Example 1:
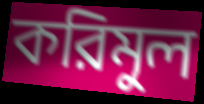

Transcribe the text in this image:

করিমুল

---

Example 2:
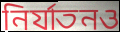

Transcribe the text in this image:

নির্যাতনও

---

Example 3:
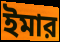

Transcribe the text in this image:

ইমার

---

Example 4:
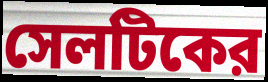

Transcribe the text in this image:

সেলটিকের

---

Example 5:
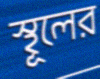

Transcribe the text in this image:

স্থূলের